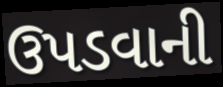
ઉપડવાની